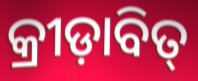
କ୍ରୀଡ଼ାବିତ୍